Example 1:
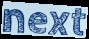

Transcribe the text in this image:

next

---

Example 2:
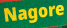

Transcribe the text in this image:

Nagore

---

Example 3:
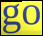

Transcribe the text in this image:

go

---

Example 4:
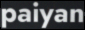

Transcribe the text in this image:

paiyan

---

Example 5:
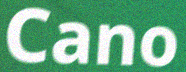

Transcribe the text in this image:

Cano